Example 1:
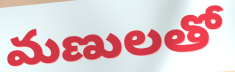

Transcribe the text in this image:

మణులతో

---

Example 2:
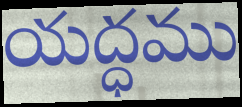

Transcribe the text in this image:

యద్ధము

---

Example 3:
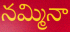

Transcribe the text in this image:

నమ్మినా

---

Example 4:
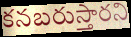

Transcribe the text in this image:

కనబరుస్తారని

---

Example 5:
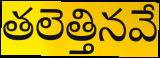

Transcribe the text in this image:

తలెత్తినవే